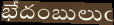
భేదంబులుఁ